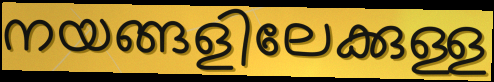
നയങ്ങളിലേക്കുള്ള